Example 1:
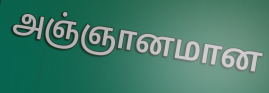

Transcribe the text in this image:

அஞ்ஞானமான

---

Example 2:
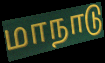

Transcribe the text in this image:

மாநாடு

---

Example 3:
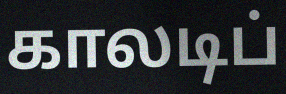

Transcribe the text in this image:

காலடிப்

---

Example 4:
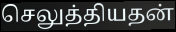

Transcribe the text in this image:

செலுத்தியதன்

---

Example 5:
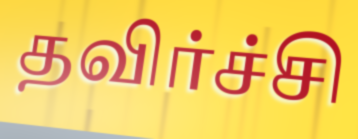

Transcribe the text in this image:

தவிர்ச்சி